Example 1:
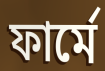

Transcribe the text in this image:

ফার্মে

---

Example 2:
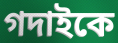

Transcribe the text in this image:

গদাইকে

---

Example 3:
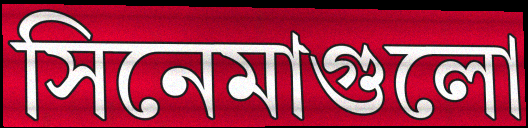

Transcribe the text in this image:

সিনেমাগুলো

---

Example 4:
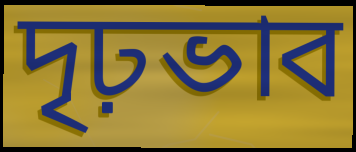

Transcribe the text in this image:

দৃঢ়ভাব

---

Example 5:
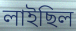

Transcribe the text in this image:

লাইছিল